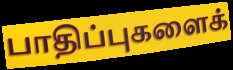
பாதிப்புகளைக்